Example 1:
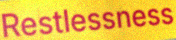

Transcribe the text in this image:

Restlessness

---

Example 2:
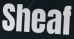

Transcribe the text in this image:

Sheaf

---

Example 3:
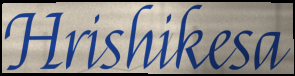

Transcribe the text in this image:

Hrishikesa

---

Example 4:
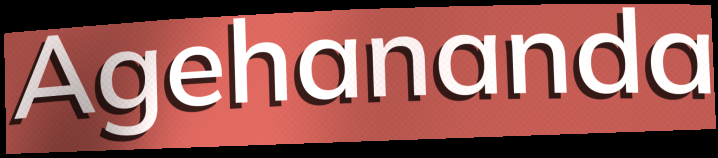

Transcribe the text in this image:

Agehananda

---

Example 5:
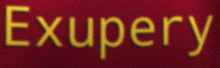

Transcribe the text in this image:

Exupery